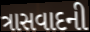
ત્રાસવાદની